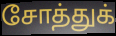
சோத்துக்